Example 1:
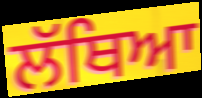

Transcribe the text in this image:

ਲੱਥਿਆ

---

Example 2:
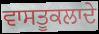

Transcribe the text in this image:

ਵਾਸਤੂਕਲਾਦੇ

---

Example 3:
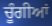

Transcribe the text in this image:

ਚੂੰਗੀਆਂ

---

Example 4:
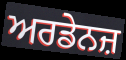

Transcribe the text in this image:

ਅਰਡੇਨਜ਼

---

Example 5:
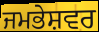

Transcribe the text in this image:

ਜਮਭੇਸ਼ਵਰ